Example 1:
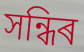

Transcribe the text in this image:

সন্ধিৰ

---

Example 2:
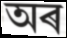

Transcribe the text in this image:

অৰ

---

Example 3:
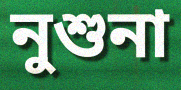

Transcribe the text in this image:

নুশুনা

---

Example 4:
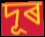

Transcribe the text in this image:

দূৰ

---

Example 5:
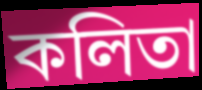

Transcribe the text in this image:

কলিতা